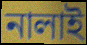
নালাই